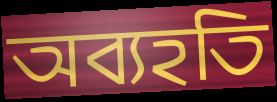
অব্যহতি